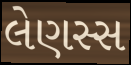
લેણસ્સ